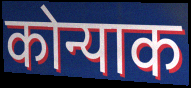
कोन्याक